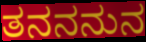
ತನನನುನ